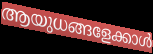
ആയുധങ്ങളേക്കാൾ